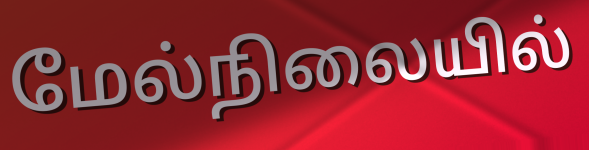
மேல்நிலையில்